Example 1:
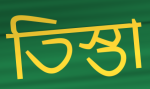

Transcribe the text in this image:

তিস্তা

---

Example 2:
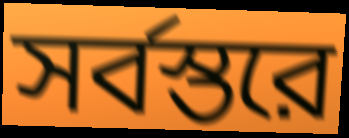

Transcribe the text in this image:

সর্বস্তরে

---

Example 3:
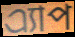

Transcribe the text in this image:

এ্যাপ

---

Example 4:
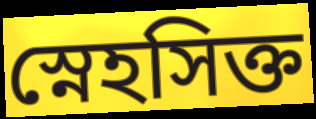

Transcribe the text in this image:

স্নেহসিক্ত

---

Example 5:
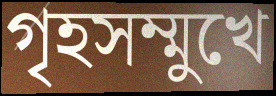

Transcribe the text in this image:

গৃহসম্মুখে